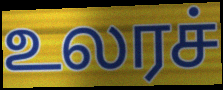
உலரச்